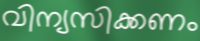
വിന്യസിക്കണം